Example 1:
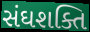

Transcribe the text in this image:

સંઘશક્તિ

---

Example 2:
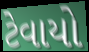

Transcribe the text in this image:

ટેવાયો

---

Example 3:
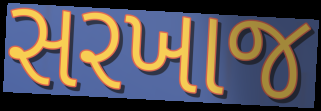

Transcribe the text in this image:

સરખાજ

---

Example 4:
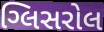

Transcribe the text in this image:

ગ્લિસરોલ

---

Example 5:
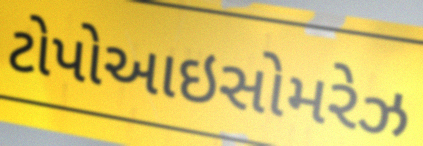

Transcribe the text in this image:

ટોપોઆઇસોમરેઝ